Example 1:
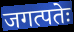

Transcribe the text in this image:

जगत्पतेः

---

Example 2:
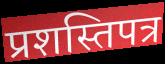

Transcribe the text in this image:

प्रशस्तिपत्र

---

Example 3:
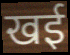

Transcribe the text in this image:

खई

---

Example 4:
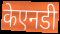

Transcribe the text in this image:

केएनडी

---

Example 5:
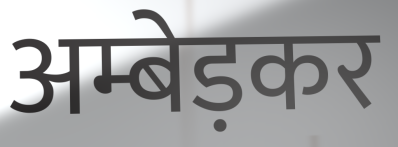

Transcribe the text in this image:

अम्बेड़कर